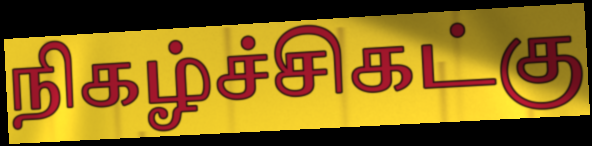
நிகழ்ச்சிகட்கு